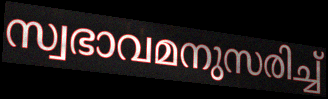
സ്വഭാവമനുസരിച്ച്